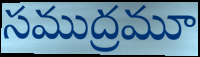
సముద్రమూ